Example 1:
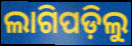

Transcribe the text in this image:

ଲାଗିପଡ଼ିଲୁ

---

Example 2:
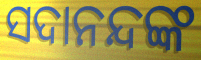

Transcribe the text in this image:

ସଦାନନ୍ଦଙ୍କ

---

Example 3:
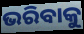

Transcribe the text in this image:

ଭରିବାକୁ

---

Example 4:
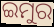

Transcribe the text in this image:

ଇମୁର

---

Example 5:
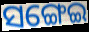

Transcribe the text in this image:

ସଙ୍ଗେଇ